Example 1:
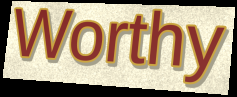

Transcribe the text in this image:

Worthy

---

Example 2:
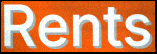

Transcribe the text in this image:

Rents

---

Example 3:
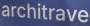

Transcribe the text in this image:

architrave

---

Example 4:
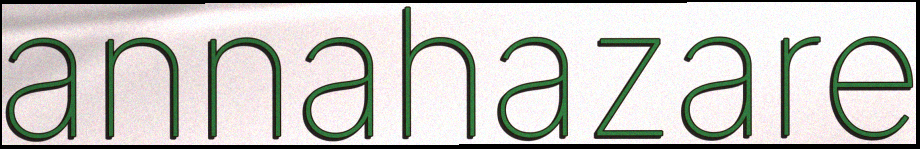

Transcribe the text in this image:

annahazare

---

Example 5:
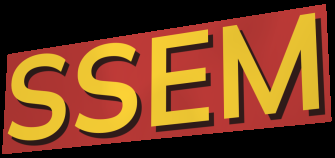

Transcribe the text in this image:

SSEM